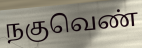
நகுவெண்